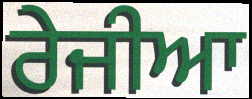
ਰੇਜੀਆ